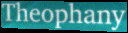
Theophany